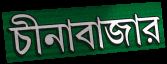
চীনাবাজার